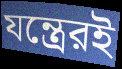
যন্ত্রেরই